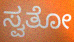
ಸ್ವತೋ